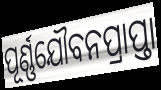
ପୂର୍ଣ୍ଣଯୌବନପ୍ରାପ୍ତା